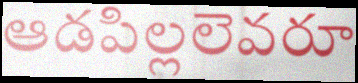
ఆడపిల్లలెవరూ